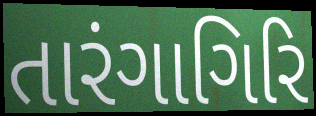
તારંગાગિરિ